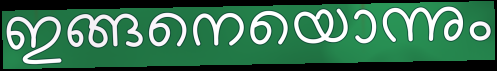
ഇങ്ങനെയൊന്നും